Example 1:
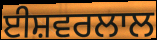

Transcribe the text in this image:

ਈਸ਼ਵਰਲਾਲ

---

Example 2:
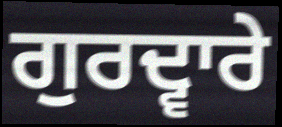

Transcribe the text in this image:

ਗੁਰਦ੍ਵਾਰੇ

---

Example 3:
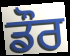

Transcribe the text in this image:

ਡੌਰ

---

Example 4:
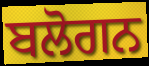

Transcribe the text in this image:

ਬਲੋਗਨ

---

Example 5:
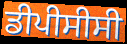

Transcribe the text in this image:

ਡੀਪੀਸੀਸੀ